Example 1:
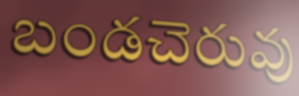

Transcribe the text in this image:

బండచెరువు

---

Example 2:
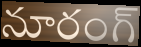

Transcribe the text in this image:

నూరంగ్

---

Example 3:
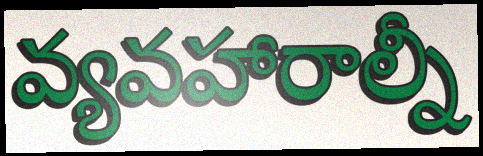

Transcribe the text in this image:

వ్యవహారాల్నీ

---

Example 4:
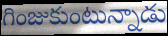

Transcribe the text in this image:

గింజుకుంటున్నాడు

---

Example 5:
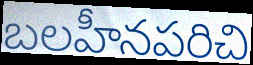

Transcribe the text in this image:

బలహీనపరిచి